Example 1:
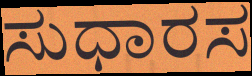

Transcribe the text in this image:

ಸುಧಾರಸ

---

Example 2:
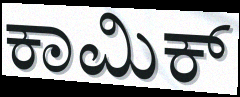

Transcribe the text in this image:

ಕಾಮಿಕ್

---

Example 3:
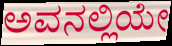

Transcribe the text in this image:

ಅವನಲ್ಲಿಯೇ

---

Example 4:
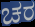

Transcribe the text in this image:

ಚರ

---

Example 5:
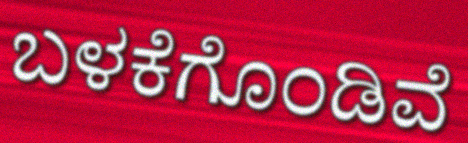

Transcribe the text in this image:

ಬಳಕೆಗೊಂಡಿವೆ